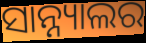
ସାନ୍ନ୍ୟାଲର